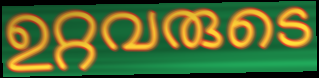
ഉറ്റവരുടെ